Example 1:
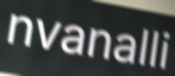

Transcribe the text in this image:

nvanalli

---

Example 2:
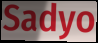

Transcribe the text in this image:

Sadyo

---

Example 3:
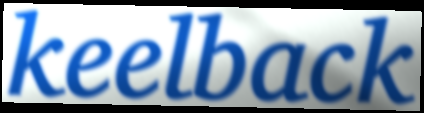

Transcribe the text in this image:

keelback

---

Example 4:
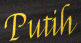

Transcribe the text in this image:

Putih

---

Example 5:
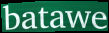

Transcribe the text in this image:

batawe